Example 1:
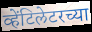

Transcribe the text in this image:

व्हेंटिलेटरच्या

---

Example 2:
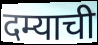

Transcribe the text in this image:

दम्याची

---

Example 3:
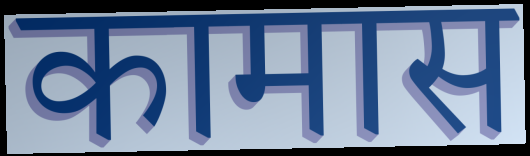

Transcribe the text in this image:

कामास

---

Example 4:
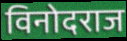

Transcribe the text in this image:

विनोदराज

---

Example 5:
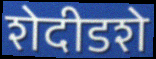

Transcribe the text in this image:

शेदीडशे